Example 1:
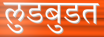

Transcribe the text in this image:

लुडबुडत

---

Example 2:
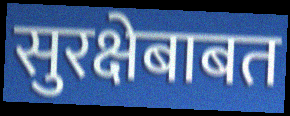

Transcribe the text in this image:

सुरक्षेबाबत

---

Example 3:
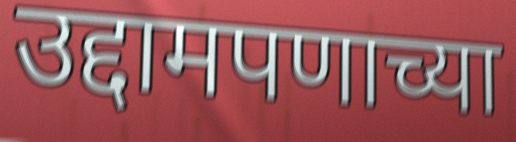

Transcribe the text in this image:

उद्दामपणाच्या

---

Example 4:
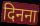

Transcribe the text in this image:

दिनना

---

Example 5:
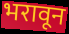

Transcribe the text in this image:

भरावून